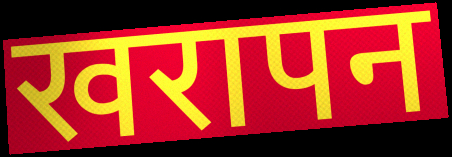
खरापन